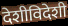
देशीविदेशी